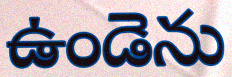
ఉండెను